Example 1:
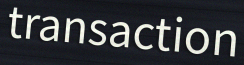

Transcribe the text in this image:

transaction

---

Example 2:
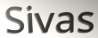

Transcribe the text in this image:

Sivas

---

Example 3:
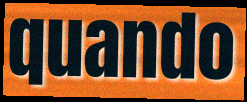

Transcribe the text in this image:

quando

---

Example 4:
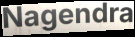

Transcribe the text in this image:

Nagendra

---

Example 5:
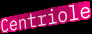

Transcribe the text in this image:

Centriole